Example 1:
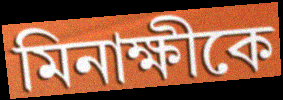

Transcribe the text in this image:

মিনাক্ষীকে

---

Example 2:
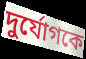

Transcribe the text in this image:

দুর্যোগকে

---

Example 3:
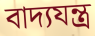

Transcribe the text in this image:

বাদ্যযন্ত্র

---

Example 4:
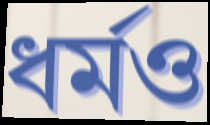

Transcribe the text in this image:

ধর্মও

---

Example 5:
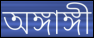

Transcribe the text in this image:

অঙ্গাঙ্গী